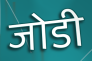
जोडी